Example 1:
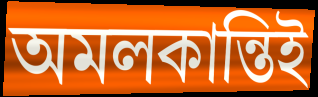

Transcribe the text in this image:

অমলকান্তিই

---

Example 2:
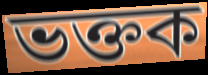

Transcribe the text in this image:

ভক্তক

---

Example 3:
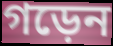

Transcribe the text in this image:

গড়েন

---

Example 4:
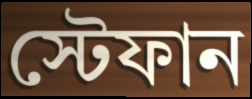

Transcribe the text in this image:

স্টেফান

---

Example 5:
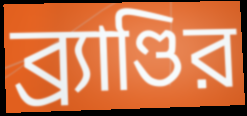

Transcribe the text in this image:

ব্র্যাণ্ডির